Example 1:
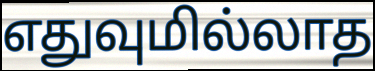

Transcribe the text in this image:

எதுவுமில்லாத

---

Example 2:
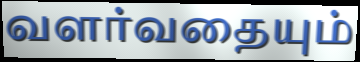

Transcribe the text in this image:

வளர்வதையும்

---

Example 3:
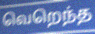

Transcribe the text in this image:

வெறெந்த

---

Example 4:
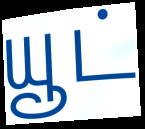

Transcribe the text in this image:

யூட்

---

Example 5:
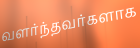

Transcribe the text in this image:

வளர்ந்தவர்களாக